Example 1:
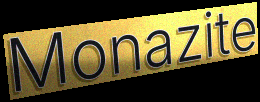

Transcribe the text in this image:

Monazite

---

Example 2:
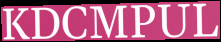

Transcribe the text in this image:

KDCMPUL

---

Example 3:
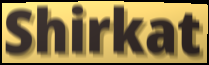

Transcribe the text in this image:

Shirkat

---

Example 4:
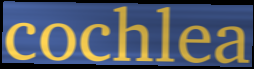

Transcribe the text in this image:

cochlea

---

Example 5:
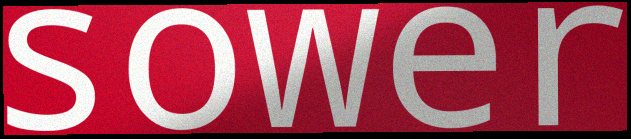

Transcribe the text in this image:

sower